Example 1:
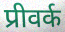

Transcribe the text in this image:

प्रीवर्क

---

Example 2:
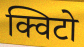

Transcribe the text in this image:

क्विटो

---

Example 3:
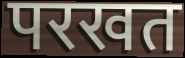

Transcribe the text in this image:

परखत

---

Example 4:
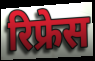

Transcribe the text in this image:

रिफ्रेस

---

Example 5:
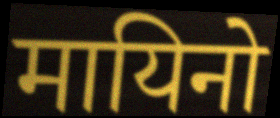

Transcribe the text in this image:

मायिनो